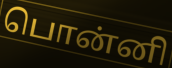
பொன்னி